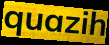
quazih